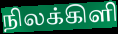
நிலக்கிளி